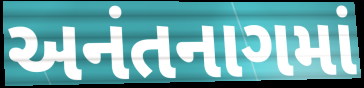
અનંતનાગમાં